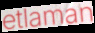
etlaman